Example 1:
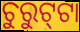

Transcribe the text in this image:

ଚୁରୁଟ୍‍ଟା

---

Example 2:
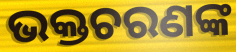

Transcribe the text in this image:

ଭକ୍ତଚରଣଙ୍କ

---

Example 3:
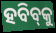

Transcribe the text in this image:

ହବିବ୍‌କୁ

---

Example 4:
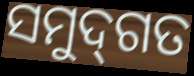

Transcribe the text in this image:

ସମୁଦ୍‌ଗତ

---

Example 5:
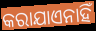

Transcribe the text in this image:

କରାଯାଏନାହିଁ